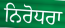
ਨਿਰੋਧਰਾ